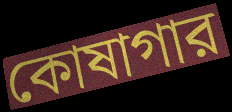
কোষাগার